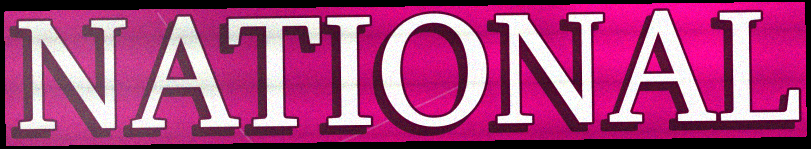
NATIONAL